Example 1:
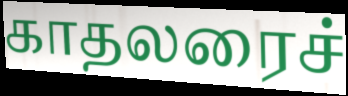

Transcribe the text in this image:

காதலரைச்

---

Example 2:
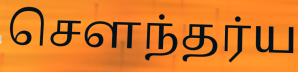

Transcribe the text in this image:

செளந்தர்ய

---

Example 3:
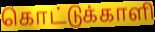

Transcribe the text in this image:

கொட்டுக்காளி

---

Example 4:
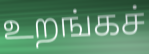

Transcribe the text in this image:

உறங்கச்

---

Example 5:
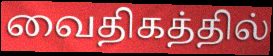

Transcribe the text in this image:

வைதிகத்தில்